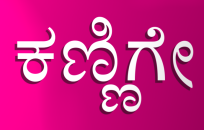
ಕಣ್ಣಿಗೇ